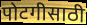
पोटगीसाठी